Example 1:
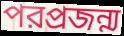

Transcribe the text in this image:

পরপ্রজন্ম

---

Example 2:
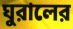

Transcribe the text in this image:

ঘুরালের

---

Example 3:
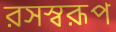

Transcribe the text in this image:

রসস্বরূপ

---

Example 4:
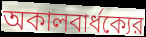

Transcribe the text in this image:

অকালবার্ধক্যের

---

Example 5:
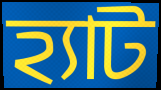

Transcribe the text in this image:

হ্যাট